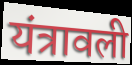
यंत्रावली